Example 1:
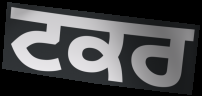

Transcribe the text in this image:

ਟਕਰ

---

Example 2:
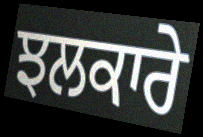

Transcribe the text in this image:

ਝਲਕਾਰੇ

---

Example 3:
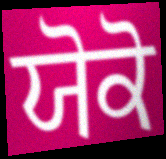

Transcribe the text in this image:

ਯੋਕੋ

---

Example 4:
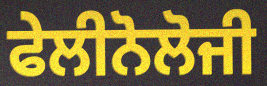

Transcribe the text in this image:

ਫੇਲੀਨੋਲੋਜੀ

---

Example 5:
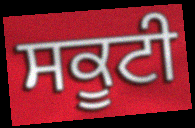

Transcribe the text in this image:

ਸਕੂਟੀ